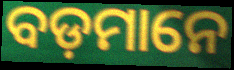
ବଡ଼ମାନେ